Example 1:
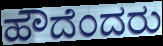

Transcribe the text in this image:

ಹೌದೆಂದರು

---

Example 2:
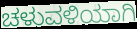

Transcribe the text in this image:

ಚಳುವಳಿಯಾಗಿ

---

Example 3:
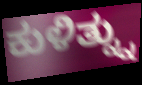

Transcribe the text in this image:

ಕುಳಿತ್ನ್ನು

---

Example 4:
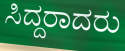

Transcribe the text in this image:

ಸಿದ್ದರಾದರು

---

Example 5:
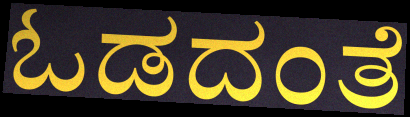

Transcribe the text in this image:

ಓಡದಂತೆ